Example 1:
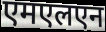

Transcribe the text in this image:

एमएलएन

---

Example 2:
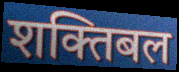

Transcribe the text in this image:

शक्तिबल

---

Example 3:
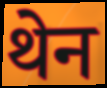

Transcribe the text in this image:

थेन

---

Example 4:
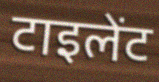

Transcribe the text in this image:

टाइलेंट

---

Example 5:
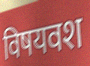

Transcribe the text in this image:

विषयवश